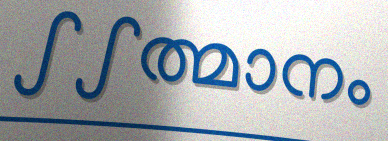
ഽഽത്മാനം